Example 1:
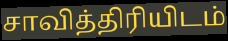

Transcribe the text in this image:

சாவித்திரியிடம்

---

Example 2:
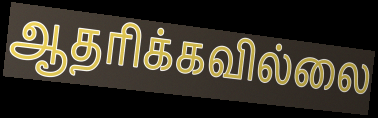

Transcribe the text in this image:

ஆதரிக்கவில்லை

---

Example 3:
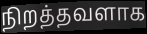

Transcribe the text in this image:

நிறத்தவளாக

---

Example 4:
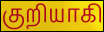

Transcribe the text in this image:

குறியாகி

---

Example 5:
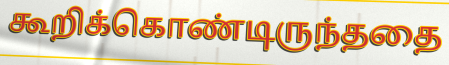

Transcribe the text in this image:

கூறிக்கொண்டிருந்ததை